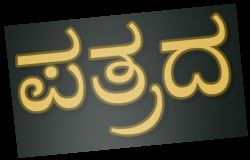
ಪತ್ರದ